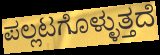
ಪಲ್ಲಟಗೊಳ್ಳುತ್ತದೆ